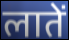
लातें